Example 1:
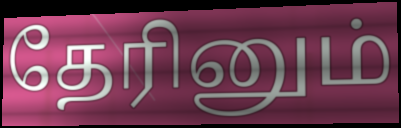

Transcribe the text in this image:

தேரினும்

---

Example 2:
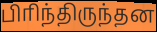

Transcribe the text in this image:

பிரிந்திருந்தன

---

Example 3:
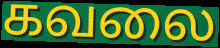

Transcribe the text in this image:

கவலை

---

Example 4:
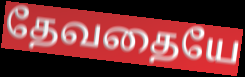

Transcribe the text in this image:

தேவதையே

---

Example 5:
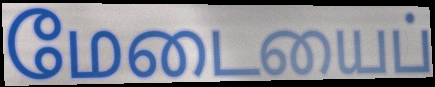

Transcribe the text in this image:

மேடையைப்